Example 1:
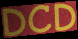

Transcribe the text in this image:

DCD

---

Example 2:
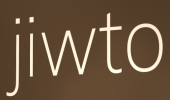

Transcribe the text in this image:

jiwto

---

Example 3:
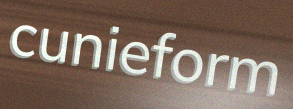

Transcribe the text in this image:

cunieform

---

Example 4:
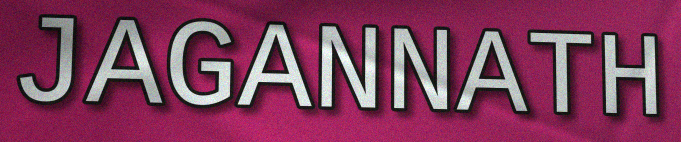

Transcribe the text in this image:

JAGANNATH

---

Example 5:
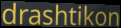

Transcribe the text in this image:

drashtikon